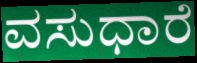
ವಸುಧಾರೆ